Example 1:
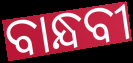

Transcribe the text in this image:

ବାନ୍ଧବୀ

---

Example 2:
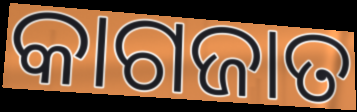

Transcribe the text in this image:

କାଗଜାତ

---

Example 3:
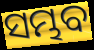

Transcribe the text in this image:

ସମ୍ଭବ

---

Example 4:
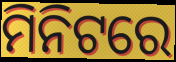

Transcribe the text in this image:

ମିନିଟରେ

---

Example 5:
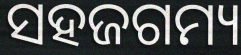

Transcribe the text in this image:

ସହଜଗମ୍ୟ